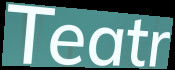
Teatr